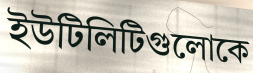
ইউটিলিটিগুলোকে